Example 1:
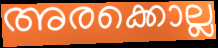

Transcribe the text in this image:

അരക്കൊല്ല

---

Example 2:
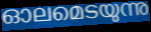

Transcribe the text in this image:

ഓലമെടയുന്നു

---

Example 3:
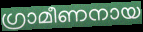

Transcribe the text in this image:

ഗ്രാമീണനായ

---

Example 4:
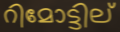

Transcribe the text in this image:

റിമോട്ടില്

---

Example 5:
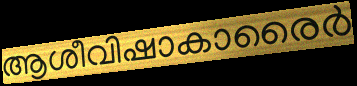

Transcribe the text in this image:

ആശീവിഷാകാരൈർ